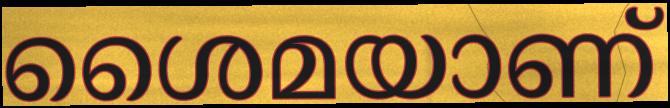
ശൈമയാണ്